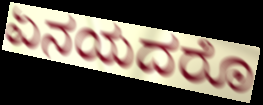
ಏನಯದರೊ